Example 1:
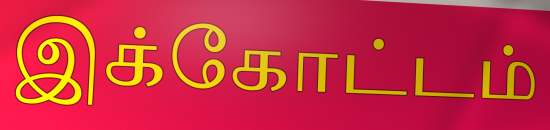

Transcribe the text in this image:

இக்கோட்டம்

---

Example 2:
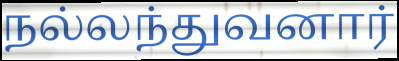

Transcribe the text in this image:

நல்லந்துவனார்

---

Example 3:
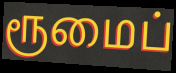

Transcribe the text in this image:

ரூமைப்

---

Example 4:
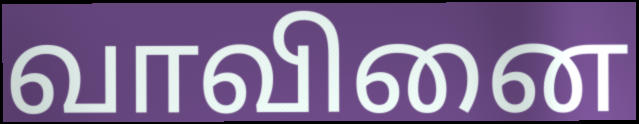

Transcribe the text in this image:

வாவினை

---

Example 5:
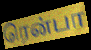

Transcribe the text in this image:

ரென்பா